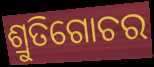
ଶ୍ରୁତିଗୋଚର